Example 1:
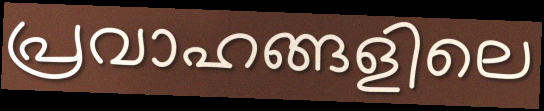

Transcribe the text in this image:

പ്രവാഹങ്ങളിലെ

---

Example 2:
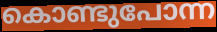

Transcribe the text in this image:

കൊണ്ടുപോന്ന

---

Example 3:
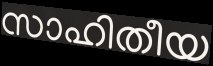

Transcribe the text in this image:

സാഹിതീയ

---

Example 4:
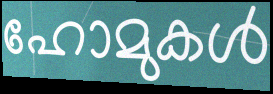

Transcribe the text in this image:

ഹോമുകൾ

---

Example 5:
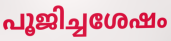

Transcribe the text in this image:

പൂജിച്ചശേഷം